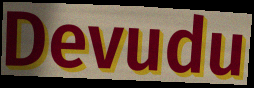
Devudu